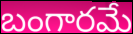
బంగారమే